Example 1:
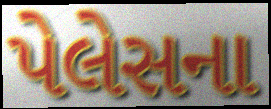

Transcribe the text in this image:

પેલેસના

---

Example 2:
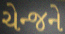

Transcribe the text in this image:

ચેન્જને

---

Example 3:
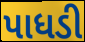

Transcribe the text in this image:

પાધડી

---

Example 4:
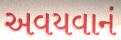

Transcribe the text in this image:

અવયવાનં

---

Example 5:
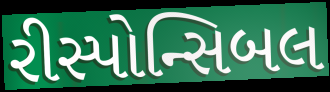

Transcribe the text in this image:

રીસ્પોન્સિબલ